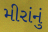
મીરાંનું